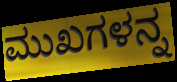
ಮುಖಗಳನ್ನ